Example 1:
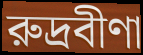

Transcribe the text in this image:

রুদ্রবীণা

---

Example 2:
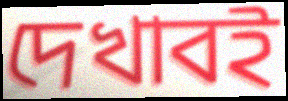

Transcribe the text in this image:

দেখাবই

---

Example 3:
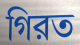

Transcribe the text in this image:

গিরত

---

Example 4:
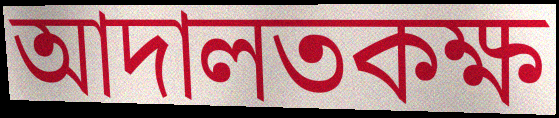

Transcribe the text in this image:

আদালতকক্ষ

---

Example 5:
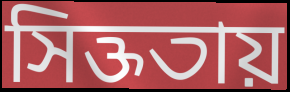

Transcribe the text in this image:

সিক্ততায়